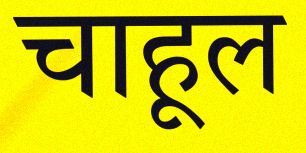
चाहूल